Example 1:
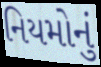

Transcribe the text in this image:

નિયમોનું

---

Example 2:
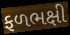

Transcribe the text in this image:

ફળભક્ષી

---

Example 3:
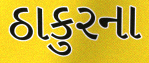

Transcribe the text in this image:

ઠાકુરના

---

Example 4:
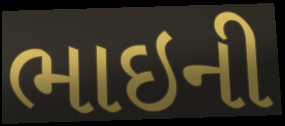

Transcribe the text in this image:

ભાઇની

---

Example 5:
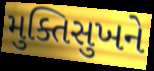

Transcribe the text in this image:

મુક્તિસુખને